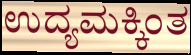
ಉದ್ಯಮಕ್ಕಿಂತ